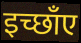
इच्छाँए